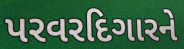
પરવરદિગારને